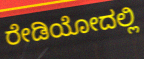
ರೇಡಿಯೋದಲ್ಲಿ